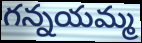
గన్నయమ్మ